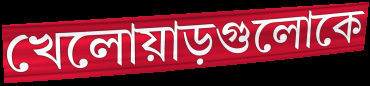
খেলোয়াড়গুলোকে